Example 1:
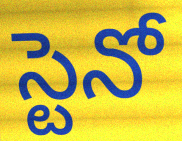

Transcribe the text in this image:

స్టెనో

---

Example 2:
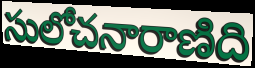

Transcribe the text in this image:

సులోచనారాణిది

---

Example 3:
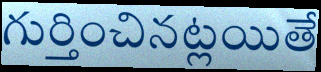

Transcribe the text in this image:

గుర్తించినట్లయితే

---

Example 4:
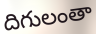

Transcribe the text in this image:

దిగులంతా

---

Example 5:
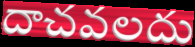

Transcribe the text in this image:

దాచవలదు